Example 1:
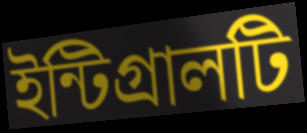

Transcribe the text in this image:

ইন্টিগ্রালটি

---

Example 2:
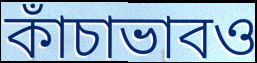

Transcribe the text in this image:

কাঁচাভাবও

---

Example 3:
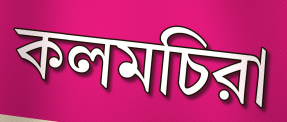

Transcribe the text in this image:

কলমচিরা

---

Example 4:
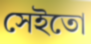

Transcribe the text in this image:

সেইতো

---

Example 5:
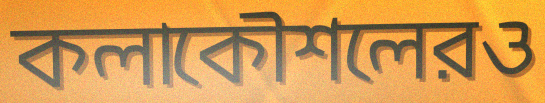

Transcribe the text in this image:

কলাকৌশলেরও